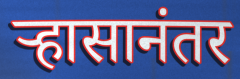
ऱ्हासानंतर